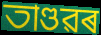
তাণ্ডৱৰ